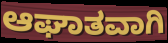
ಆಘಾತವಾಗಿ